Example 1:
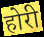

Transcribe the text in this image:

होरी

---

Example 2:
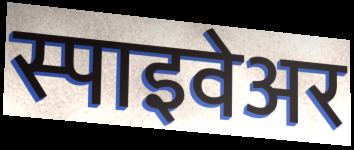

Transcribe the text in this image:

स्पाइवेअर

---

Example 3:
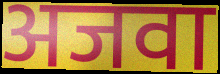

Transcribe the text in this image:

अजवा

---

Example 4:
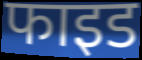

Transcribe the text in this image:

फाइड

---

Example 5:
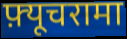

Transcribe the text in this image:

फ़्यूचरामा